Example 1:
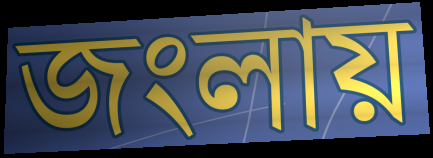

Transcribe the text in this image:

জংলায়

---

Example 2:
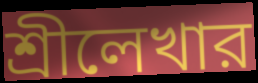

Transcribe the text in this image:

শ্রীলেখার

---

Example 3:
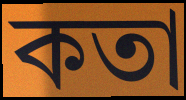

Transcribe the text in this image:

কতা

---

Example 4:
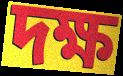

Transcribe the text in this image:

দক্ষ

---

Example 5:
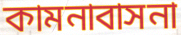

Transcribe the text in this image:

কামনাবাসনা